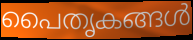
പൈതൃകങ്ങൾ